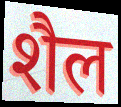
शैल